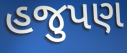
હજુપણ